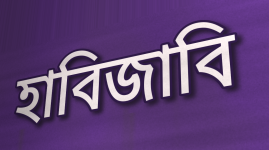
হাবিজাবি